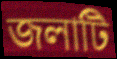
জলাটি